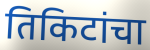
तिकिटांचा